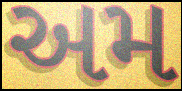
અમ